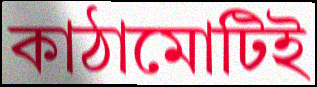
কাঠামোটিই